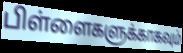
பிள்ளைகளுக்காகவும்